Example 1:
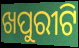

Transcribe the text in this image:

ଖପୁରୀଟି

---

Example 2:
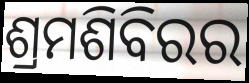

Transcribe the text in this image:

ଶ୍ରମଶିବିରର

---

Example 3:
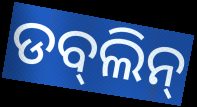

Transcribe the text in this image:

ଡବ୍‌ଲିନ୍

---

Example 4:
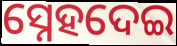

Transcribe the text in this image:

ସ୍ନେହଦେଇ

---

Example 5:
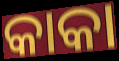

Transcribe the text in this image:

କାକା